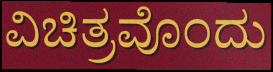
ವಿಚಿತ್ರವೊಂದು